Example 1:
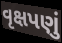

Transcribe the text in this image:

વૃક્ષપણું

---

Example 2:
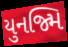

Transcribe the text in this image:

યુનજ્મિ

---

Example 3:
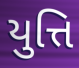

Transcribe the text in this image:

યુત્તિ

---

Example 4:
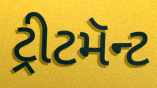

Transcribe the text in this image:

ટ્રીટમૅન્ટ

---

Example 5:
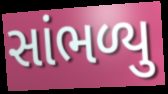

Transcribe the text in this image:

સાંભળ્યુ